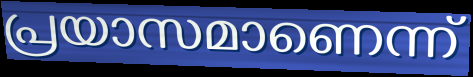
പ്രയാസമാണെന്ന്